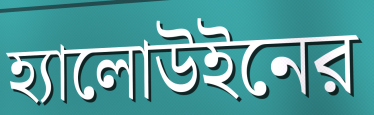
হ্যালোউইনের